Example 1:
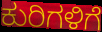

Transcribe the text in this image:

ಕುರಿಗಳಿಗೆ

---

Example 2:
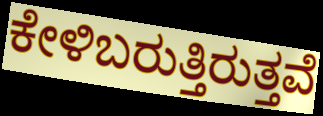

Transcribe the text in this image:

ಕೇಳಿಬರುತ್ತಿರುತ್ತವೆ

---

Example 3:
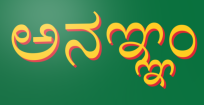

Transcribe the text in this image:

ಅನಞ್ಞಂ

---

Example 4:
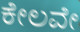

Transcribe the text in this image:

ಕೇಲವೇ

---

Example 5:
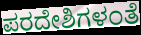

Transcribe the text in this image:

ಪರದೇಶಿಗಳಂತೆ